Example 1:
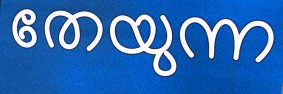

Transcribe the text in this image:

തേയുന്ന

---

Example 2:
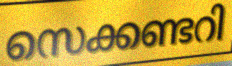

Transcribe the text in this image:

സെക്കണ്ടറി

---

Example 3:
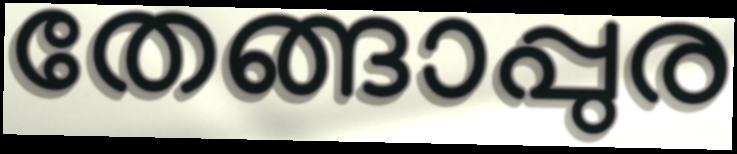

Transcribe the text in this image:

തേങ്ങാപ്പുര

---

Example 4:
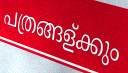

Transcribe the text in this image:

പത്രങ്ങള്ക്കും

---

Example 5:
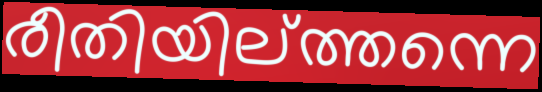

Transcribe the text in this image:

രീതിയില്ത്തന്നെ